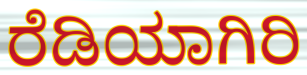
ರೆಡಿಯಾಗಿರಿ